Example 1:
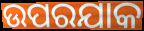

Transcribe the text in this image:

ଉପରଯାକ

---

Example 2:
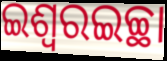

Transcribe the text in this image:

ଇଶ୍ୱରଇଚ୍ଛା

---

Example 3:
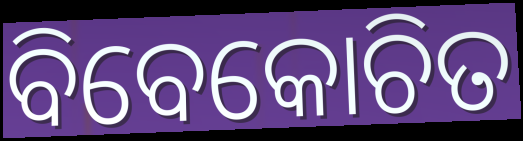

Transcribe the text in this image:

ବିବେକୋଚିତ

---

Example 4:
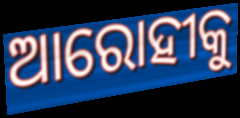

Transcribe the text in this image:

ଆରୋହୀକୁ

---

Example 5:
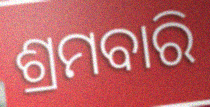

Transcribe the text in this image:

ଶ୍ରମବାରି